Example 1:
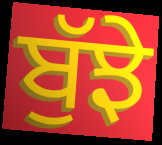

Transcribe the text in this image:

ਬੁੱਝੇ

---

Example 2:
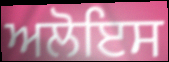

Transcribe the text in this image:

ਅਲੋਇਸ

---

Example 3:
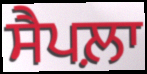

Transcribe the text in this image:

ਸੈਪਲ਼ਾ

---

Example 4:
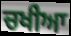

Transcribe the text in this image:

ਚਖੀਆ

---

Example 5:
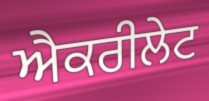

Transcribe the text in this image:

ਐਕਰੀਲੇਟ